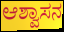
ಆಶ್ವಾಸನ